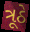
ત્રૂઠે